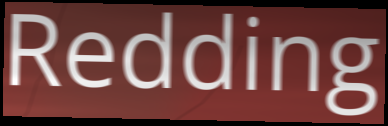
Redding